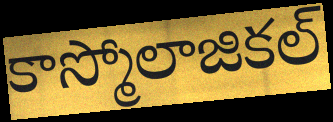
కాస్మోలాజికల్